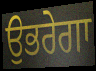
ਉਭਰੇਗਾ